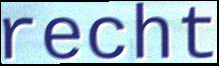
recht